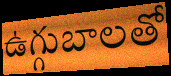
ఉగ్గుబాలతో